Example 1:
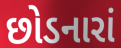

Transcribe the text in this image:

છોડનારાં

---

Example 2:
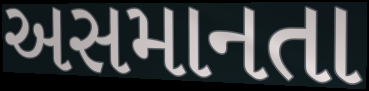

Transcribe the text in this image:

અસમાનતા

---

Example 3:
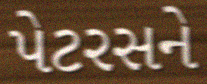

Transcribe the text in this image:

પેટરસને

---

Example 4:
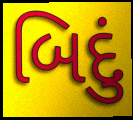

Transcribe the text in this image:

બિદું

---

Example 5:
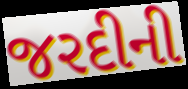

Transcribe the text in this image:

જરદીની